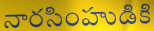
నారసింహుడికి